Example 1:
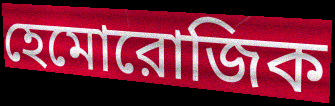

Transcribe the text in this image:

হেমোরোজিক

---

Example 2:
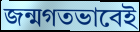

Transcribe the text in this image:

জন্মগতভাবেই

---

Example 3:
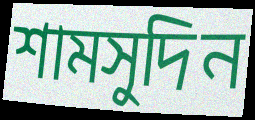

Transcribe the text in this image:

শামসুদিন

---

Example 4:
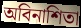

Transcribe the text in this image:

অবিনাশিতা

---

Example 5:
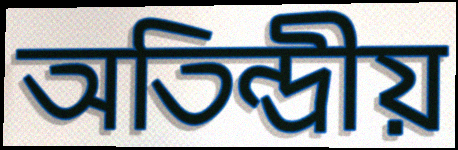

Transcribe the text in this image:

অতিন্দ্রীয়